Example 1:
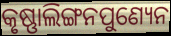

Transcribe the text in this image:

କୃଷ୍ଣାଲିଙ୍ଗନପୁଣ୍ଯେନ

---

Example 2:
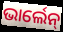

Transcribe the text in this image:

ଭାର୍ଲେନ୍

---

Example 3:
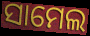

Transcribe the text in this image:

ସାମେଲ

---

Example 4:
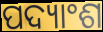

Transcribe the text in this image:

ପଦ୍ୟାଂଶ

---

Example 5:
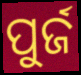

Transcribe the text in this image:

ପୁର୍ଜ